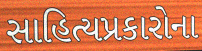
સાહિત્યપ્રકારોના